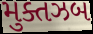
મુક્તઝબ